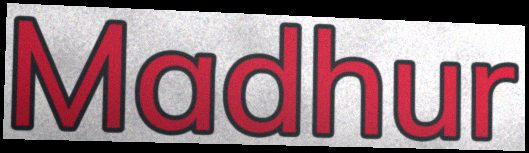
Madhur